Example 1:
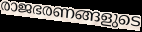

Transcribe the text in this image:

രാജഭരണങ്ങളുടെ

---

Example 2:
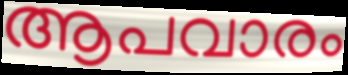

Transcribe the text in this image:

ആപവാരം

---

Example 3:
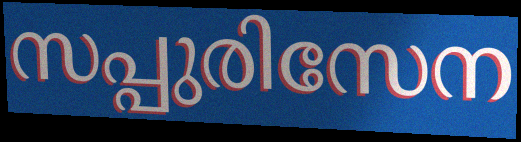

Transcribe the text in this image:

സപ്പുരിസേന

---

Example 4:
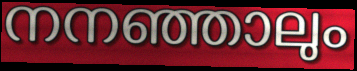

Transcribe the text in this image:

നനഞ്ഞാലും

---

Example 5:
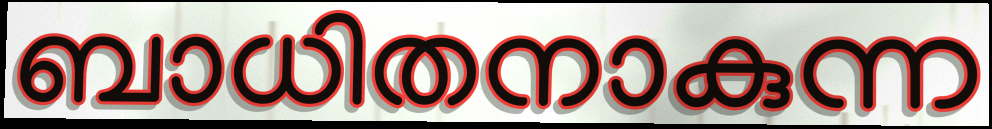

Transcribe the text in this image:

ബാധിതനാകുന്ന